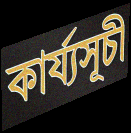
কাৰ্য্যসূচী